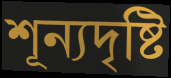
শূন্যদৃষ্টি